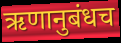
ऋणानुबंधच